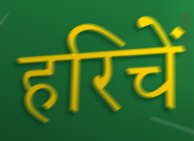
हरिचें